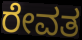
ರೇವತ